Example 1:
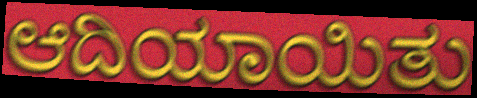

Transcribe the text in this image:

ಆದಿಯಾಯಿತು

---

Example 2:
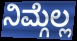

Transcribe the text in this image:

ನಿಮ್ಗೆಲ್ಲ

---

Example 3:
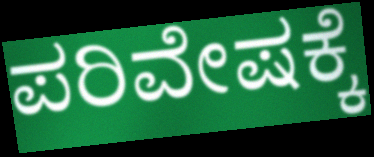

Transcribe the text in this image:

ಪರಿವೇಷಕ್ಕೆ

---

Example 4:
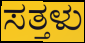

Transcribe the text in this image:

ಸತ್ತಳು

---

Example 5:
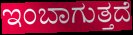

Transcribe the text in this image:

ಇಂಬಾಗುತ್ತದೆ